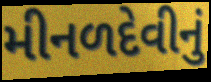
મીનળદેવીનું